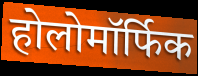
होलोमॉर्फिक